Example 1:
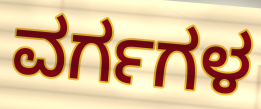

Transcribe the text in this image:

ವರ್ಗಗಳ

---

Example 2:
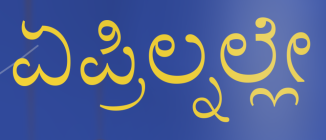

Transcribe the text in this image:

ಏಪ್ರಿಲ್ನಲ್ಲೇ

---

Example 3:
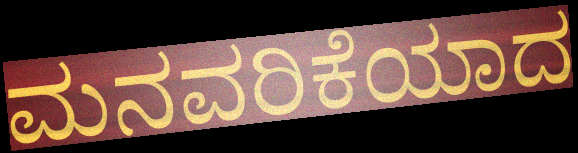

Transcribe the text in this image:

ಮನವರಿಕೆಯಾದ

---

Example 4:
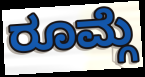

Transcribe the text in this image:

ರೂಮ್ಗೆ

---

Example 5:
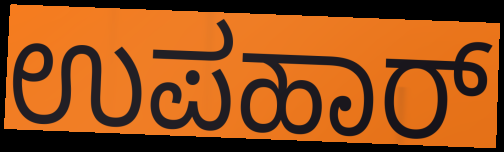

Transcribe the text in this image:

ಉಪಹಾರ್